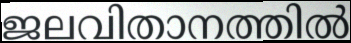
ജലവിതാനത്തിൽ